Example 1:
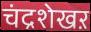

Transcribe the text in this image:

चंद्रशेखऱ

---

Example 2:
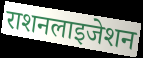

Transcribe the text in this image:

राशनलाइजेशन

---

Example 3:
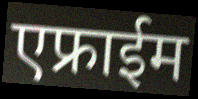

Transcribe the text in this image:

एफ्राईम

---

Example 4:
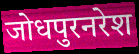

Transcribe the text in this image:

जोधपुरनरेश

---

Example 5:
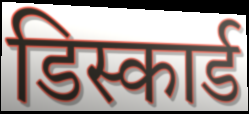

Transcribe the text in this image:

डिस्कार्ड